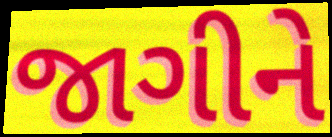
જાગીને